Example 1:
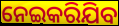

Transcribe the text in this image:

ନେଇକରିଯିବ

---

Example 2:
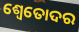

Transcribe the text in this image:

ଶ୍ୱେତୋଦର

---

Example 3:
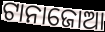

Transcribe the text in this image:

ଟାନାଜୋଆ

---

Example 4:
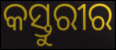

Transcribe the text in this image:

କସ୍ତୁରୀର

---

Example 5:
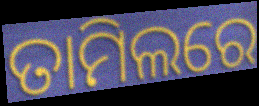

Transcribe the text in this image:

ତାମିଲରେ